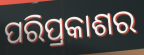
ପରିପ୍ରକାଶର